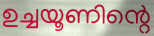
ഉച്ചയൂണിന്റെ